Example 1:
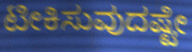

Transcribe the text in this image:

ಟೀಕಿಸುವುದಷ್ಟೇ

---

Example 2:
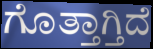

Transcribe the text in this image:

ಗೊತ್ತಾಗ್ತಿದೆ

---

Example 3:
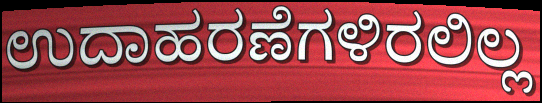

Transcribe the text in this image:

ಉದಾಹರಣೆಗಳಿರಲಿಲ್ಲ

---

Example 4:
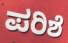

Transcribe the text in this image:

ಪರಿಶೆ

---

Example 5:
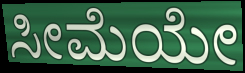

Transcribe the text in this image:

ಸೀಮೆಯೇ